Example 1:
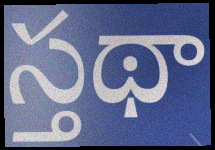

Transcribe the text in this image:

స్తథా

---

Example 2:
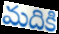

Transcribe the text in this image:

మదికి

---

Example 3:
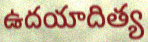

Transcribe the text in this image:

ఉదయాదిత్య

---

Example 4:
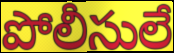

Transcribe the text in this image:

పోలీసులే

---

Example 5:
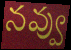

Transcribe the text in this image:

నవ్వు